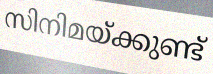
സിനിമയ്ക്കുണ്ട്